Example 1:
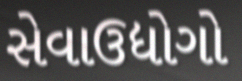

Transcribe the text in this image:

સેવાઉદ્યોગો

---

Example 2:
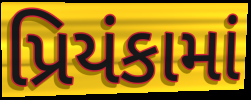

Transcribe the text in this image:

પ્રિયંકામાં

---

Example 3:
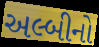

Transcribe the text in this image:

અલ્બીનો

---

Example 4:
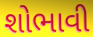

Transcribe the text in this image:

શોભાવી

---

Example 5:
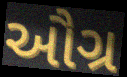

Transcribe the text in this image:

ઔગ્ર